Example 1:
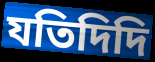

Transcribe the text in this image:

যতিদিদি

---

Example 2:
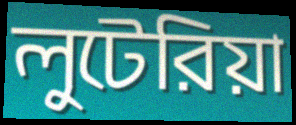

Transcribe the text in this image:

লুটেরিয়া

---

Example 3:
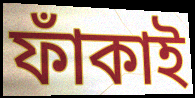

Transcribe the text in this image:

ফাঁকাই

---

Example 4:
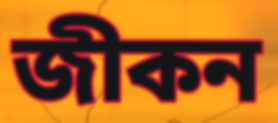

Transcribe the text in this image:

জীকন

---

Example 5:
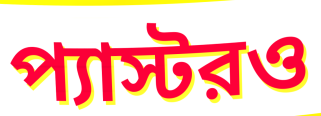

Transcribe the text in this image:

প্যাস্টরও